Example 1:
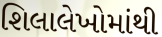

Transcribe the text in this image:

શિલાલેખોમાંથી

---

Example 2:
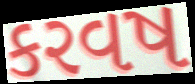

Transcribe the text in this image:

કરવષ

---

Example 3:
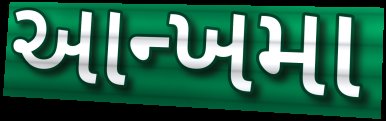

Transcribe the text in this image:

આન્ખમા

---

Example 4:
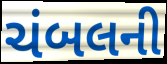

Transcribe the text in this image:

ચંબલની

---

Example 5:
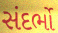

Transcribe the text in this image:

સંદર્ભો